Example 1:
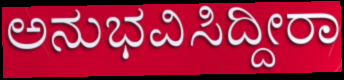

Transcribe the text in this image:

ಅನುಭವಿಸಿದ್ದೀರಾ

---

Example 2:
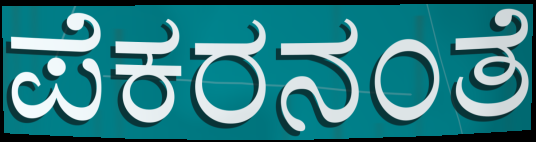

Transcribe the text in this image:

ಪೆಕರನಂತೆ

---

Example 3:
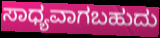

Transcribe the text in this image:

ಸಾಧ್ಯವಾಗಬಹುದು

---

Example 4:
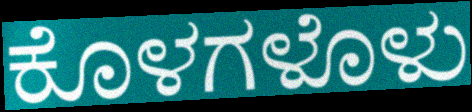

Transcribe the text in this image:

ಕೊಳಗಳೊಳು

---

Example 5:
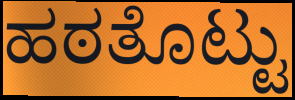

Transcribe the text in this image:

ಹಠತೊಟ್ಟು